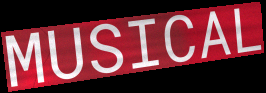
MUSICAL